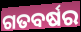
ଗତବର୍ଷର